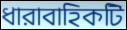
ধারাবাহিকটি